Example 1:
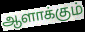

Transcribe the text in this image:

ஆளாக்கும்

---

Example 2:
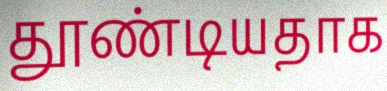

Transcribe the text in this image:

தூண்டியதாக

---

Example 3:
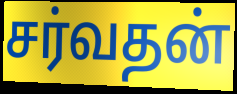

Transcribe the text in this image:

சர்வதன்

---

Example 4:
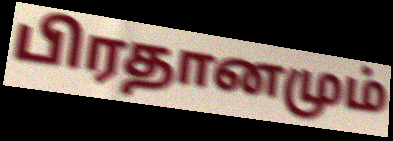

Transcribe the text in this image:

பிரதானமும்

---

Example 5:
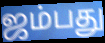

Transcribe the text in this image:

ஜம்பது